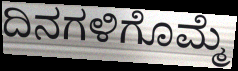
ದಿನಗಳಿಗೊಮ್ಮೆ